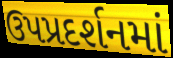
ઉપપ્રદર્શનમાં